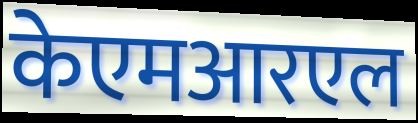
केएमआरएल